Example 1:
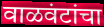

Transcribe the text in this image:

वाळवंटांचा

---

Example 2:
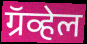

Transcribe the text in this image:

ग्रॅव्हेल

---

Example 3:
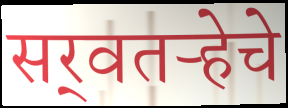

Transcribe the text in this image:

सर्वतऱ्हेचे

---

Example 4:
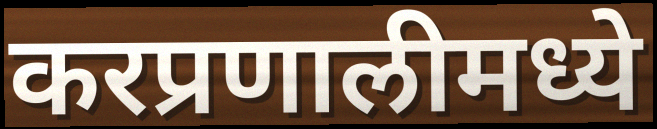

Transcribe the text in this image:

करप्रणालीमध्ये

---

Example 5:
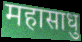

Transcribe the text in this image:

महासाधु